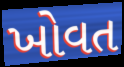
ખોવત